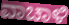
ವಾಚಾಳಿ